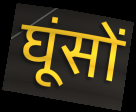
घूंसों